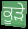
ਕੂੜੇ